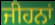
ਜੀਹਨਾਂ